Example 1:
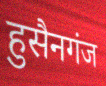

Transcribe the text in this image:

हुसैनगंज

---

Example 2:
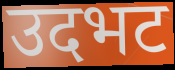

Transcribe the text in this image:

उदभट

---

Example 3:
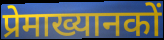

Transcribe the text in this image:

प्रेमाख्यानकों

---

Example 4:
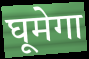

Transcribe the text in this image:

घूमेगा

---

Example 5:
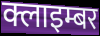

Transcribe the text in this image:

क्लाइम्बर